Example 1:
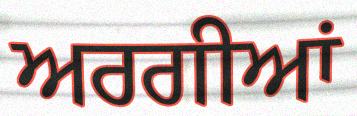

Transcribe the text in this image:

ਅਰਗੀਆਂ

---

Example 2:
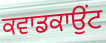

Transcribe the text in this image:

ਕਵਾਡਕਾਉਂਟ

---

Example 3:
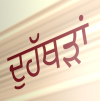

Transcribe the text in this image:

ਦੁਹੱਥੜਾਂ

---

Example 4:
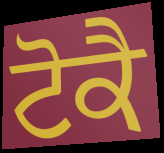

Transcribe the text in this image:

ਟੋਕੈ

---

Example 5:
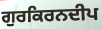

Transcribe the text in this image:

ਗੁਰਕਿਰਨਦੀਪ